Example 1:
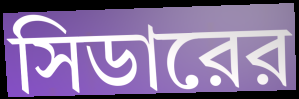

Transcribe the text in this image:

সিডারের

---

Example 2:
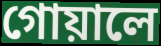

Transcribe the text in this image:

গোয়ালে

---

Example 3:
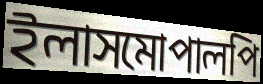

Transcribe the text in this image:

ইলাসমোপালপি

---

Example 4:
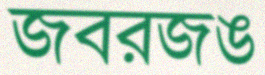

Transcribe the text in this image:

জবরজঙ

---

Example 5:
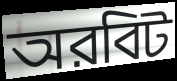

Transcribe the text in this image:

অরবিট